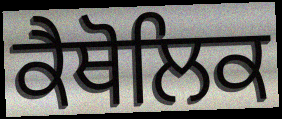
ਕੈਥੋਲਿਕ